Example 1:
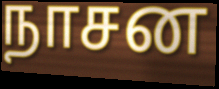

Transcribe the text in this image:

நாசன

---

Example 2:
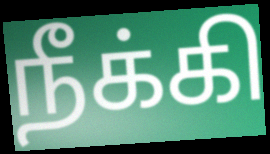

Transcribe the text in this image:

நீக்கி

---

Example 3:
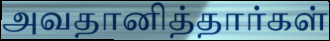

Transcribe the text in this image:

அவதானித்தார்கள்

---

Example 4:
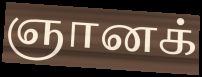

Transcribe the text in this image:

ஞானக்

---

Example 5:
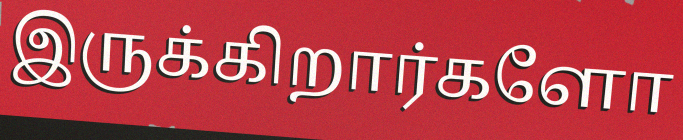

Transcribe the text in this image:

இருக்கிறார்களோ